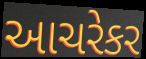
આચરેકર